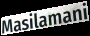
Masilamani